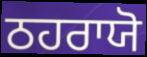
ਠਹਰਾਯੋ